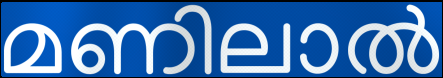
മണിലാൽ